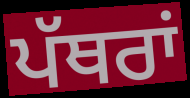
ਪੱਥਰਾਂ